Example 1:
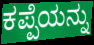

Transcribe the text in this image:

ಕಪ್ಪೆಯನ್ನು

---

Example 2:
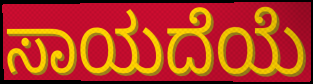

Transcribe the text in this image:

ಸಾಯದೆಯೆ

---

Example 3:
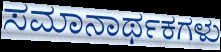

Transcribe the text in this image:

ಸಮಾನಾರ್ಥಕಗಳು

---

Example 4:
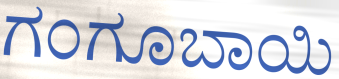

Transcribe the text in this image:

ಗಂಗೂಬಾಯಿ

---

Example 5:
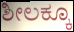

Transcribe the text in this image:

ಶೀಲಕ್ಕೂ